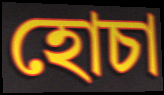
হোচা